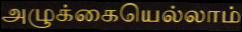
அழுக்கையெல்லாம்